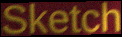
Sketch